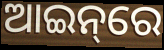
ଆଇନ୍‌ରେ